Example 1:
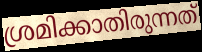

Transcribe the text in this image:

ശ്രമിക്കാതിരുന്നത്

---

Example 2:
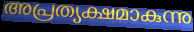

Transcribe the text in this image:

അപ്രത്യക്ഷമാകുന്നു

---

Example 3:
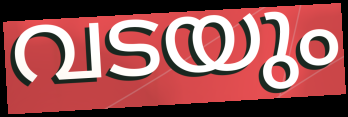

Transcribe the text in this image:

വടയും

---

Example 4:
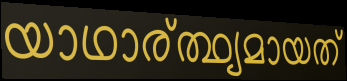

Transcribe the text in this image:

യാഥാര്ത്ഥ്യമായത്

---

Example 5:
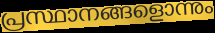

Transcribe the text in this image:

പ്രസ്ഥാനങ്ങളൊന്നും